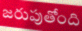
జరుపుతోంది